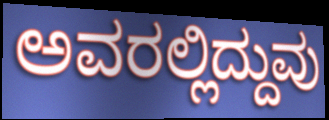
ಅವರಲ್ಲಿದ್ದುವು